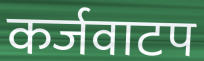
कर्जवाटप